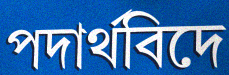
পদাৰ্থবিদে